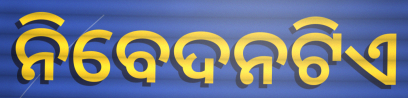
ନିବେଦନଟିଏ